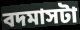
বদমাসটা